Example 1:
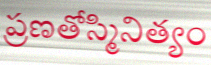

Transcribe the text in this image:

ప్రణతోస్మినిత్యం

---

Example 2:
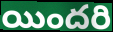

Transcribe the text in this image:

యిందరి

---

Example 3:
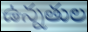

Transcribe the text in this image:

ఉన్నతుల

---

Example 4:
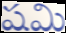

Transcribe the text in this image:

షమి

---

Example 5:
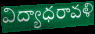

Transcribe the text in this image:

విద్యాధరావళి